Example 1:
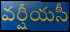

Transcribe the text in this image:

వర్షీయసీ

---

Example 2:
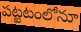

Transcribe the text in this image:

పట్టటంలోనూ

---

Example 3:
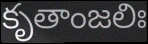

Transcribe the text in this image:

కృతాంజలిః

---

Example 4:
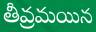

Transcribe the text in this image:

తీవ్రమయిన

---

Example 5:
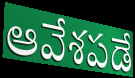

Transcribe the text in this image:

ఆవేశపడే